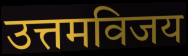
उत्तमविजय